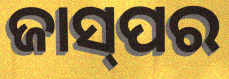
ଜାସ୍‌ପର